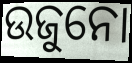
ଉଜୁନୋ